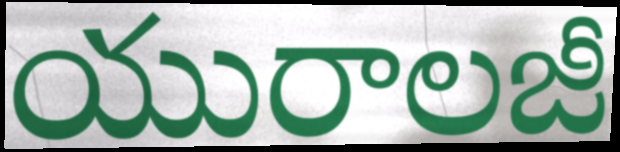
యురాలజీ